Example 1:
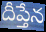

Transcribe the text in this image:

దీప్తేన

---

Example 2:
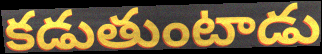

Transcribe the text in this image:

కడుతుంటాడు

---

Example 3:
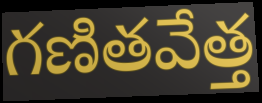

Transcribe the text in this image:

గణితవేత్త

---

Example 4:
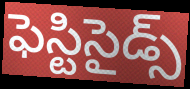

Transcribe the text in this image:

ఫెస్టిసైడ్స్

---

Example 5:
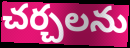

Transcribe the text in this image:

చర్చలను